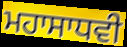
ਮਹਾਸਾਧਵੀ